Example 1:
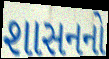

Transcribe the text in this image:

શાસનનો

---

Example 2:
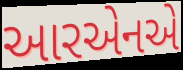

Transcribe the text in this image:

આરએનએ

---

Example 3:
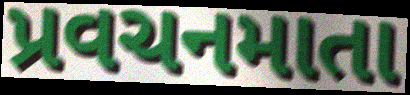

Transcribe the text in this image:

પ્રવચનમાતા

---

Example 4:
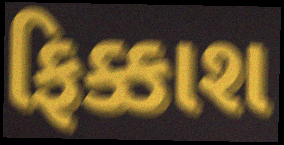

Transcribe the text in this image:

ફિક્કાશ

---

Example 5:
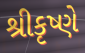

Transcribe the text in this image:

શ્રીકૃષ્ણે